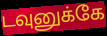
டவுனுக்கே